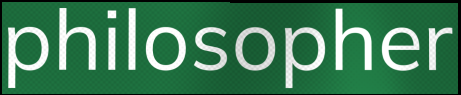
philosopher